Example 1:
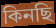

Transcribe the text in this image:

কিনছি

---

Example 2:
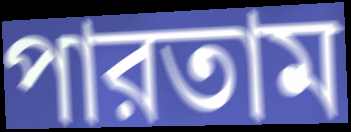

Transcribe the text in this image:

পারতাম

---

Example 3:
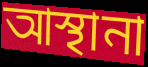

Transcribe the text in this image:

আস্থানা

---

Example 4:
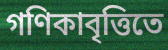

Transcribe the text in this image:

গণিকাবৃত্তিতে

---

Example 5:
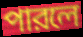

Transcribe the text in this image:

পারলে